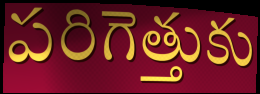
పరిగెత్తుకు